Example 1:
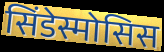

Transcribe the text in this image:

सिंडेस्मोसिस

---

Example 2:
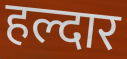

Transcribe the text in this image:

हल्दार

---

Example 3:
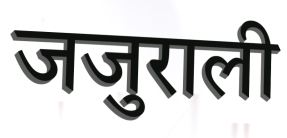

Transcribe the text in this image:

जजुराली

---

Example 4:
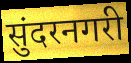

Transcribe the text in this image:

सुंदरनगरी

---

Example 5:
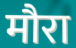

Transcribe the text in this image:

मौरा